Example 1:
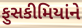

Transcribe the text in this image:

ફુસકીમિયાંને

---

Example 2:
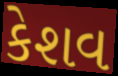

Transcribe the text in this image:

કેશવ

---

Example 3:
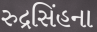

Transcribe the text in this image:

રુદ્રસિંહના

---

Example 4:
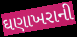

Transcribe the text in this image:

ઘણાખરાની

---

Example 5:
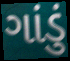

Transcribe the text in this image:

ગાંડું